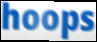
hoops